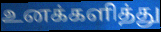
உனக்களித்து